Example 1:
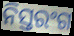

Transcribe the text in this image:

ନିସ୍ତରଂଗ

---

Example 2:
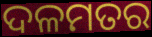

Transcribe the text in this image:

ଦଳମତର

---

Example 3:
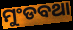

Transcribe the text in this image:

ମୁଂଡବଥା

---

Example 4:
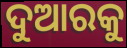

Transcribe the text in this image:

ଦୁଆରକୁ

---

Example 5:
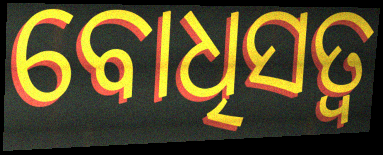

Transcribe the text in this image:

ବୋଧିସତ୍ୱ